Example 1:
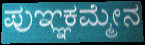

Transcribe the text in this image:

ಪುಞ್ಞಕಮ್ಮೇನ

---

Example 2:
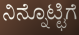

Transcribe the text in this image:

ನಿನ್ನೊಟ್ಟಿಗೆ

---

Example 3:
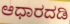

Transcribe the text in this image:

ಆಧಾರದಡಿ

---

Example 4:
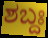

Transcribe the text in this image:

ಶಬ್ದಃ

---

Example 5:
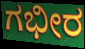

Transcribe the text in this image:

ಗಭೀರ